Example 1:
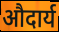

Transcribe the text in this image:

औदार्य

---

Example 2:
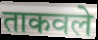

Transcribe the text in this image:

ताकवले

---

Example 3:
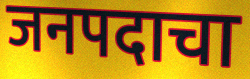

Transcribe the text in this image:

जनपदाचा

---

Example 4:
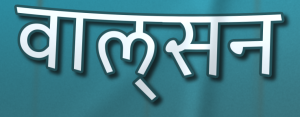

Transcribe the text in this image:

वाल्सन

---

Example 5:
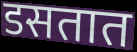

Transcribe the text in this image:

डसतात